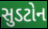
સુડટોન